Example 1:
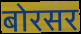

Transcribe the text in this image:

बोरसर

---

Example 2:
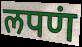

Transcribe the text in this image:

लपणं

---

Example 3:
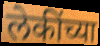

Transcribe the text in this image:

लेकींच्या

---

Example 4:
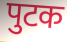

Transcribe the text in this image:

पुटक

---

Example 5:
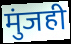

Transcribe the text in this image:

मुंजही